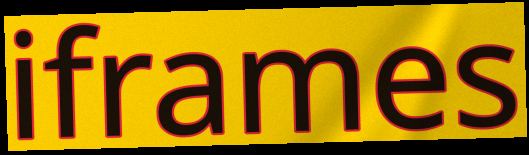
iframes